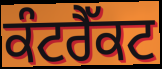
ਕੰਟਰੈੱਕਟ